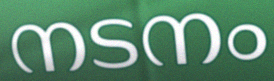
നടനം